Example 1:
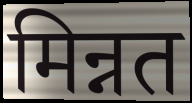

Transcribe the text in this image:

मिन्नत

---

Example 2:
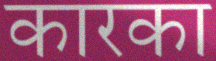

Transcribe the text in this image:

कारका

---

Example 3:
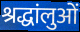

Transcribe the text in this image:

श्रद्धांलुओं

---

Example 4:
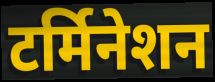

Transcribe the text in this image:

टर्मिनेशन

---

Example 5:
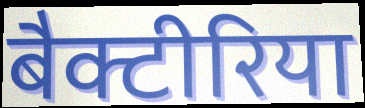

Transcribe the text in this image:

बैक्टीरिया